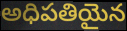
అధిపతియైన